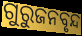
ଗୁରୁଜନବୃନ୍ଦ